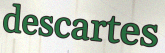
descartes